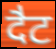
दैट